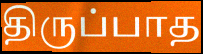
திருப்பாத